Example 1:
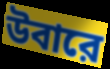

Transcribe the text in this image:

উবারে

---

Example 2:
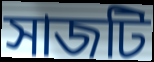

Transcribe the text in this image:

সাজটি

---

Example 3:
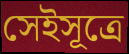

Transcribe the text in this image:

সেইসূত্রে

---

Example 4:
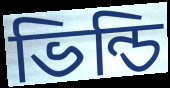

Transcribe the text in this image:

ভিন্ডি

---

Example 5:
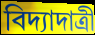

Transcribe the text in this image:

বিদ্যাদাত্রী